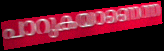
പാറുകയാണെന്ന